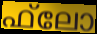
ഫ്‌ലോ